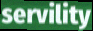
servility